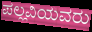
ಪಲ್ಲವಿಯವರು